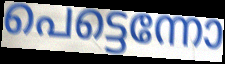
പെട്ടെന്നോ